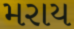
મરાય